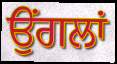
ਉੰਗਲਾਂ